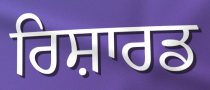
ਰਿਸ਼ਾਰਡ